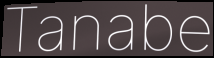
Tanabe